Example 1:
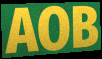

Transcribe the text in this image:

AOB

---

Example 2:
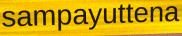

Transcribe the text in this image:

sampayuttena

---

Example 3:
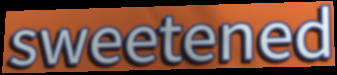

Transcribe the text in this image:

sweetened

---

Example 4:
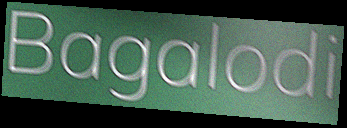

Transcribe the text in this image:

Bagalodi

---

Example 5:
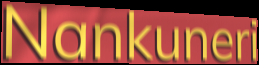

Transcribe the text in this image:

Nankuneri